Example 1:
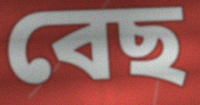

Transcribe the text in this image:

বেছ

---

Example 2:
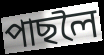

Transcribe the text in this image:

পাছলৈ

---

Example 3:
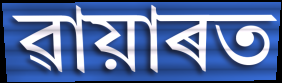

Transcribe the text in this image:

ৱায়াৰত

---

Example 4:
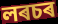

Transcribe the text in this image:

লৰচৰ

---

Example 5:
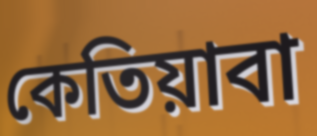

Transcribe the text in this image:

কেতিয়াবা